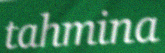
tahmina